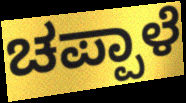
ಚಪ್ಪಾಳೆ